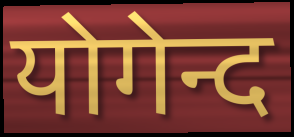
योगेन्द